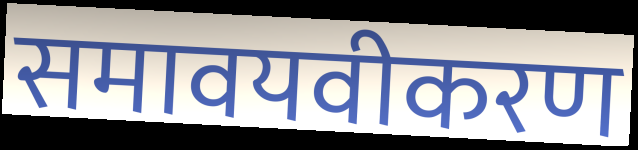
समावयवीकरण